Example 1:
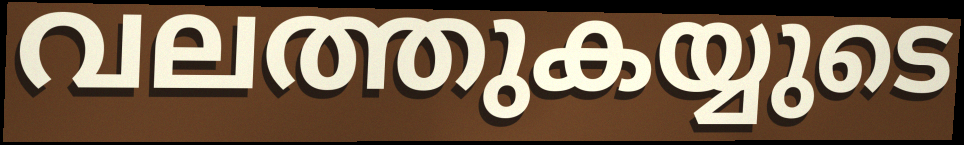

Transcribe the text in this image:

വലത്തുകയ്യുടെ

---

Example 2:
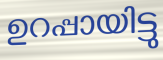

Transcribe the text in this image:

ഉറപ്പായിട്ടു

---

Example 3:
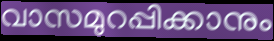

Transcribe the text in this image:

വാസമുറപ്പിക്കാനും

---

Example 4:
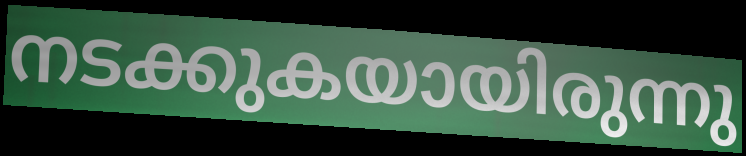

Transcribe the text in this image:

നടക്കുകയായിരുന്നു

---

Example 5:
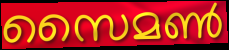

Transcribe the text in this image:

സൈമൺ